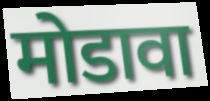
मोडावा